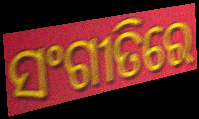
ସଂଗୀତିରେ